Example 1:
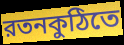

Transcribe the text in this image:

রতনকুঠিতে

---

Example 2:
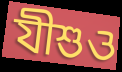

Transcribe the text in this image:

যীশুও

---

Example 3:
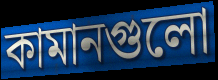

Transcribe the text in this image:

কামানগুলো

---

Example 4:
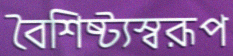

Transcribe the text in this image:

বৈশিষ্ট্যস্বরূপ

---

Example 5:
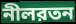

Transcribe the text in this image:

নীলরতন